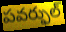
పవర్ఫుల్